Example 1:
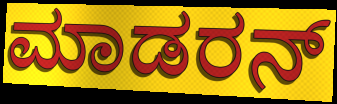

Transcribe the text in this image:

ಮಾಡರನ್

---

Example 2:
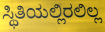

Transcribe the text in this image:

ಸ್ಥಿತಿಯಲ್ಲಿರಲಿಲ್ಲ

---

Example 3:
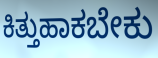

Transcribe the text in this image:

ಕಿತ್ತುಹಾಕಬೇಕು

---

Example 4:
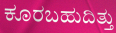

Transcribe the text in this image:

ಕೂರಬಹುದಿತ್ತು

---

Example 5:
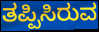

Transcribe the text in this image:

ತಪ್ಪಿಸಿರುವ